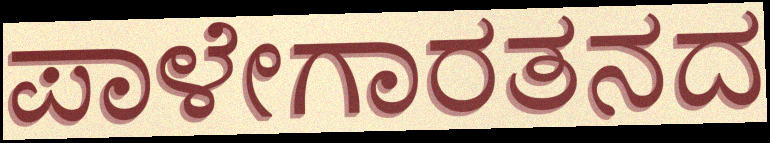
ಪಾಳೇಗಾರತನದ